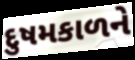
દુષમકાળને